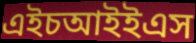
এইচআইইএস